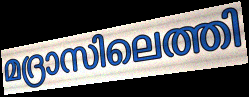
മദ്രാസിലെത്തി